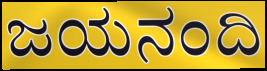
ಜಯನಂದಿ